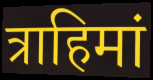
त्राहिमां